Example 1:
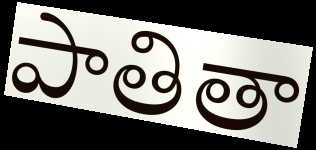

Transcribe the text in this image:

పాతితా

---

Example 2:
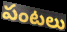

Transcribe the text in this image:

పంటలు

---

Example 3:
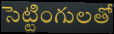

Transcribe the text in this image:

సెట్టింగులతో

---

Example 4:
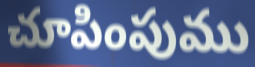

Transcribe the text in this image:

చూపింపుము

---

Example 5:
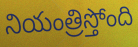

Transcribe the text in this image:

నియంత్రిస్తోంది